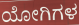
ಯೋಗಿಗಳ